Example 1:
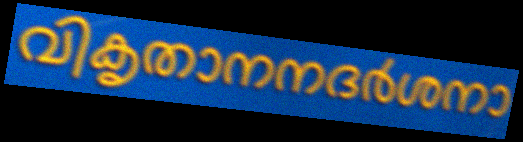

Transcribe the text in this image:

വികൃതാനനദർശനാ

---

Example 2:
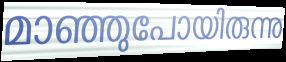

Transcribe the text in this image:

മാഞ്ഞുപോയിരുന്നു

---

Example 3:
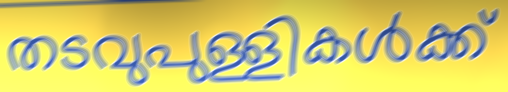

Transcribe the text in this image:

തടവുപുള്ളികൾക്ക്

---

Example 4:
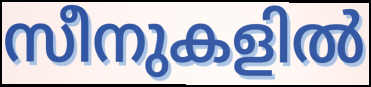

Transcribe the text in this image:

സീനുകളിൽ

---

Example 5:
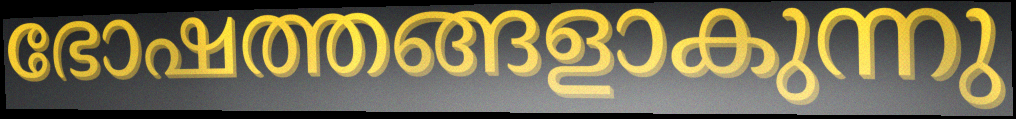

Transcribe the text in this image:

ഭോഷത്തങ്ങളാകുന്നു